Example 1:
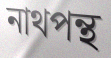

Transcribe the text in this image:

নাথপন্থ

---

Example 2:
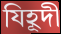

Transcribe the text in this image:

যিহূদী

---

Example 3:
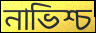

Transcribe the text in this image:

নাভিশ্চ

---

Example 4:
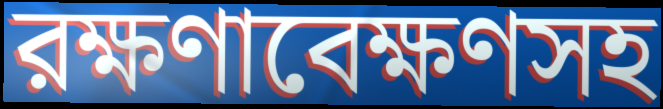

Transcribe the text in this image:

রক্ষণাবেক্ষণসহ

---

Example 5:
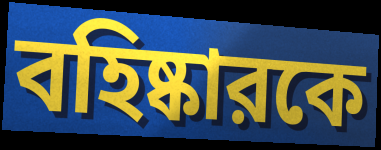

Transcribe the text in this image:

বহিষ্কারকে